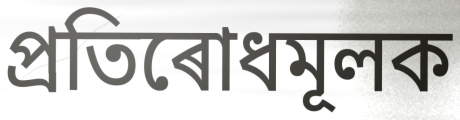
প্ৰতিৰোধমূলক